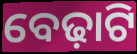
ବେଢ଼ାଟି